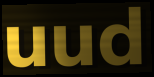
uud